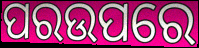
ପରଉପରେ